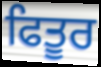
ਫਿਤੂਰ